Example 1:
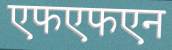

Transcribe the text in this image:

एफएफएन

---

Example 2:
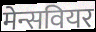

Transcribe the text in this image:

मेन्सवियर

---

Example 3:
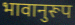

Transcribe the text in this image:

भावानुरूप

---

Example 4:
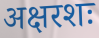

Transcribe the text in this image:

अक्षरशः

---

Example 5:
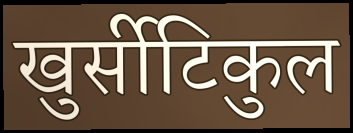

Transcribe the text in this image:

खुर्सीटिकुल